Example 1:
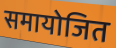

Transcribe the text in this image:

समायोजित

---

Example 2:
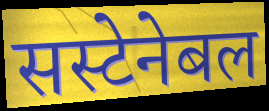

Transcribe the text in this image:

सस्टेनेबल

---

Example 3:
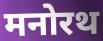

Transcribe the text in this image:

मनोरथ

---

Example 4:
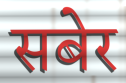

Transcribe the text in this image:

सबेर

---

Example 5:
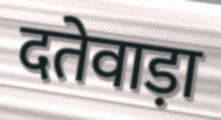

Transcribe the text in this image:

दतेवाड़ा